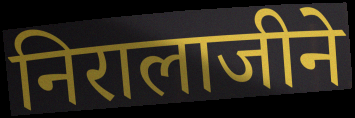
निरालाजीने